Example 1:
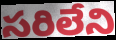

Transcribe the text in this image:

సరిలేని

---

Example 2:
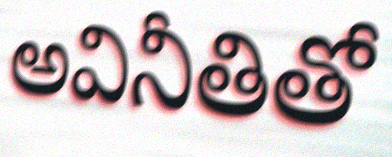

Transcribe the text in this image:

అవినీతితో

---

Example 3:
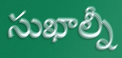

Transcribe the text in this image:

సుఖాల్నీ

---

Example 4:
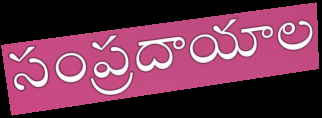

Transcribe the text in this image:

సంప్రదాయాల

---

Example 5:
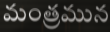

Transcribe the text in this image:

మంత్రమున